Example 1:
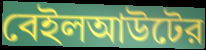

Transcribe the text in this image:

বেইলআউটের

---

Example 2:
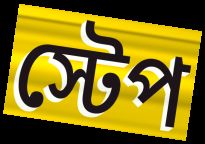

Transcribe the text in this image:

স্টেপ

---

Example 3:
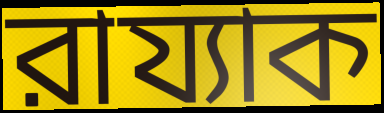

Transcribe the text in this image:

রায্যাক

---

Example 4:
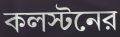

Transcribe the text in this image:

কলস্টনের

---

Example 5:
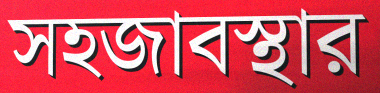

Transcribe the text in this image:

সহজাবস্থার